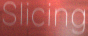
Slicing